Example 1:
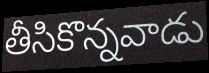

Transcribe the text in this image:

తీసికొన్నవాడు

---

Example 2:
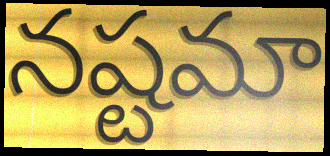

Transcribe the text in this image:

నష్టమా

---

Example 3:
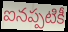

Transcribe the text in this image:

ఐనప్పటికీ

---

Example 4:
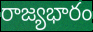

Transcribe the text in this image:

రాజ్యభారం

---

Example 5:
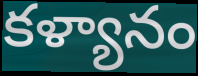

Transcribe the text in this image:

కళ్యానం